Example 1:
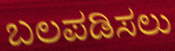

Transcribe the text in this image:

ಬಲಪಡಿಸಲು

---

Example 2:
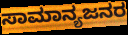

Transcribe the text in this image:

ಸಾಮಾನ್ಯಜನರ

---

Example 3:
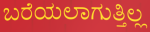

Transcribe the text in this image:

ಬರೆಯಲಾಗುತ್ತಿಲ್ಲ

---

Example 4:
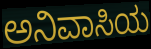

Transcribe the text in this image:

ಅನಿವಾಸಿಯ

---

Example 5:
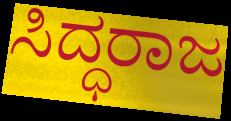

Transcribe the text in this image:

ಸಿದ್ಧರಾಜ